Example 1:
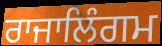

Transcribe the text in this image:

ਰਾਜਾਲਿੰਗਮ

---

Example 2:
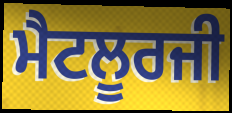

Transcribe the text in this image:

ਮੈਟਲੂਰਜੀ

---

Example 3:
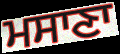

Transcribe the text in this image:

ਮਸਾਣਾ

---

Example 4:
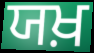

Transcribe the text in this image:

ਯਖ਼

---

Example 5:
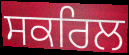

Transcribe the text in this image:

ਸਕਰਿਲ